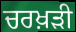
ਚਰਖ਼ੜੀ